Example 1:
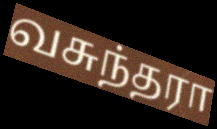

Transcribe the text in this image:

வசுந்தரா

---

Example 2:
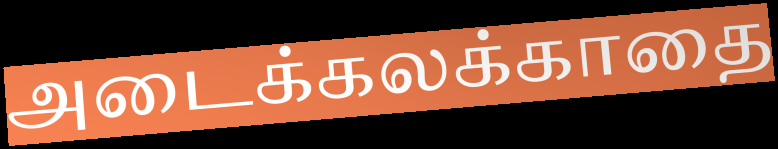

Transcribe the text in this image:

அடைக்கலக்காதை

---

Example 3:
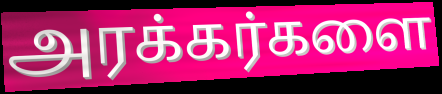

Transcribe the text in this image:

அரக்கர்களை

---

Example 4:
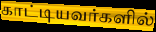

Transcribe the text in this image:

காட்டியவர்களில்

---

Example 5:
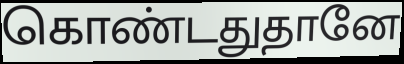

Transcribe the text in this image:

கொண்டதுதானே